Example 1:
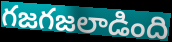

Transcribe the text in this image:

గజగజలాడింది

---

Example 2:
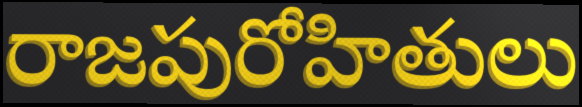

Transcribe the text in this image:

రాజపురోహితులు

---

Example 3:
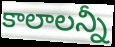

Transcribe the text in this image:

కాలాలన్నీ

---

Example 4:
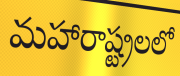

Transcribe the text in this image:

మహారాష్ట్రలలో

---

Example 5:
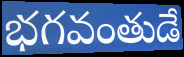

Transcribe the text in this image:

భగవంతుడే